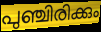
പുഞ്ചിരിക്കും